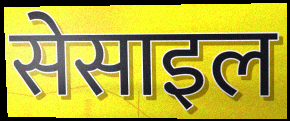
सेसाइल